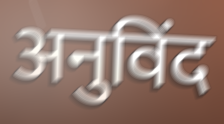
अनुविंद